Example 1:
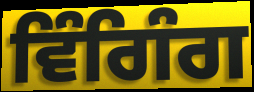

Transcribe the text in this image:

ਵਿੰਗਿੰਗ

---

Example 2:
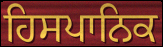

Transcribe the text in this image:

ਹਿਸਪਾਨਿਕ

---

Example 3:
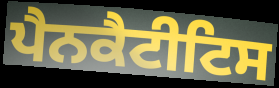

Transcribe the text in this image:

ਪੈਨਕੈਟੀਟਿਸ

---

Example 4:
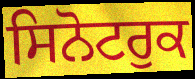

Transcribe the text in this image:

ਸਿਨੋਟਰੁਕ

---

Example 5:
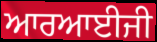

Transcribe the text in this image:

ਆਰਆਈਜੀ